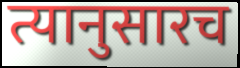
त्यानुसारच